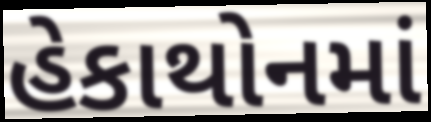
હેકાથોનમાં